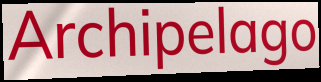
Archipelago